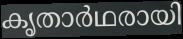
കൃതാർഥരായി